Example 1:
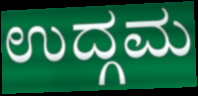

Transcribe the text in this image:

ಉದ್ಗಮ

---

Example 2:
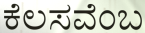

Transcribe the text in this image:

ಕೆಲಸವೆಂಬ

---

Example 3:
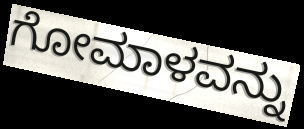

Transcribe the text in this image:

ಗೋಮಾಳವನ್ನು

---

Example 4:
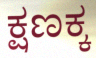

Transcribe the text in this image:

ಕ್ಷಣಕ್ಕ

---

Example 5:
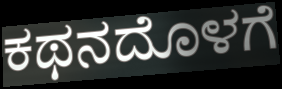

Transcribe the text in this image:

ಕಥನದೊಳಗೆ